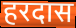
हरदास